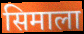
सिमाला